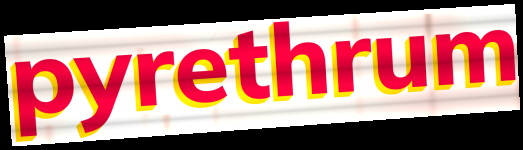
pyrethrum